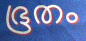
ഭൂതം